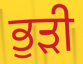
ਭੁੜੀ